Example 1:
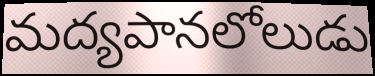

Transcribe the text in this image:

మద్యపానలోలుడు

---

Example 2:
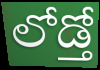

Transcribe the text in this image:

లోడ్తో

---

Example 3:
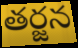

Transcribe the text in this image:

తర్జన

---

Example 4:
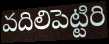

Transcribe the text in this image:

వదిలిపెట్టిరి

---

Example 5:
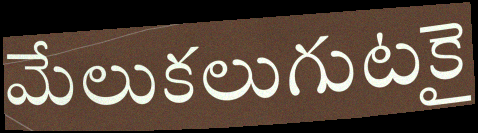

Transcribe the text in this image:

మేలుకలుగుటకై